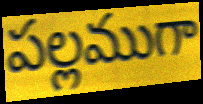
పల్లముగా